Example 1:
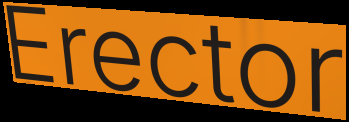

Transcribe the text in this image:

Erector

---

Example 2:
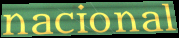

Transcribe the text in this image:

nacional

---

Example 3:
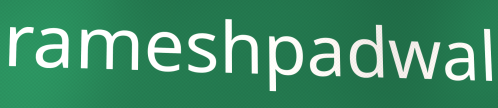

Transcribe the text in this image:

rameshpadwal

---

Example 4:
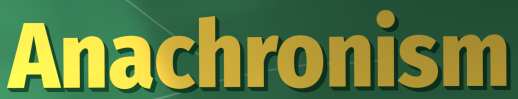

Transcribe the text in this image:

Anachronism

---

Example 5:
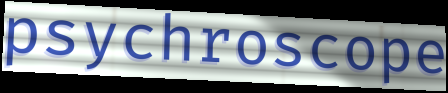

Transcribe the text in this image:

psychroscope